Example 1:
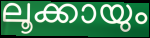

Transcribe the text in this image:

ലൂക്കായും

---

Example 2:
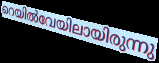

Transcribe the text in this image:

റെയിൽവേയിലായിരുന്നു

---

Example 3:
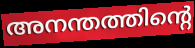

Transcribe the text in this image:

അനന്തത്തിന്റെ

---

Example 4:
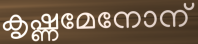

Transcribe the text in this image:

കൃഷ്ണമേനോന്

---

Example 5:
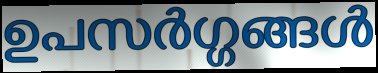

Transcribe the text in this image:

ഉപസർഗ്ഗങ്ങൾ